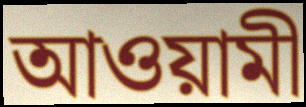
আওয়ামী